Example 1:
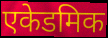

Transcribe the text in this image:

एकेडमिक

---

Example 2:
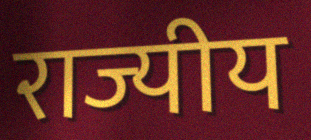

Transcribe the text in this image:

राज्‍यीय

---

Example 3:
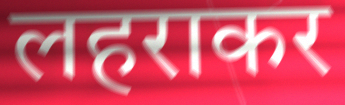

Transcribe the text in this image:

लहराकर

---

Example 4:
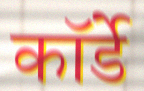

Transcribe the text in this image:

कॉर्डे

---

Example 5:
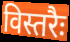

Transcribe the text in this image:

विस्तरैः